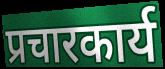
प्रचारकार्य